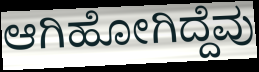
ಆಗಿಹೋಗಿದ್ದೆವು